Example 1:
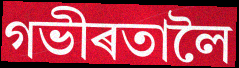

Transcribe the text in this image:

গভীৰতালৈ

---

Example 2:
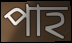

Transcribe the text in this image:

পাহ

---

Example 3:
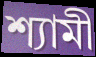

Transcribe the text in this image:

শ্যামী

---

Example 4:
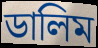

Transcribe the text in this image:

ডালিম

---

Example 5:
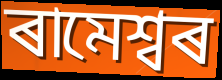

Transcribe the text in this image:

ৰামেশ্বৰ